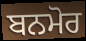
ਬਨਮੋਰ